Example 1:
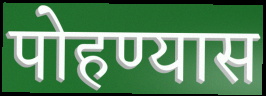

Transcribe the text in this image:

पोहण्यास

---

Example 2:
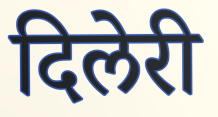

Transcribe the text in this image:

दिलेरी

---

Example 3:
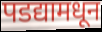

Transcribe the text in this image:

पडद्यामधून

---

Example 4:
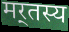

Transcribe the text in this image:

मर्तस्य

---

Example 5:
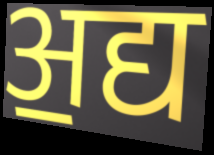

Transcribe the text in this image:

अ॒द्य